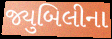
જ્યુબિલીના